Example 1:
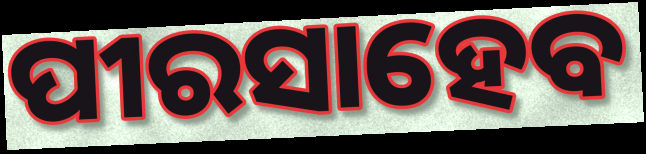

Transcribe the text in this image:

ପୀରସାହେବ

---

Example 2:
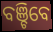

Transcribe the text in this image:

ବଞ୍ଚିବେ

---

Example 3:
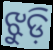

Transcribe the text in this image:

ଝୁଡ଼ି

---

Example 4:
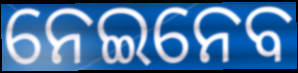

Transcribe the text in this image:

ନେଇନେବ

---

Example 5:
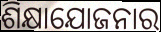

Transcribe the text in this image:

ଶିକ୍ଷାଯୋଜନାର